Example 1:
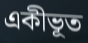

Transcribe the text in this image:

একীভূত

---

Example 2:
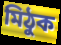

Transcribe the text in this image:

মিঠুক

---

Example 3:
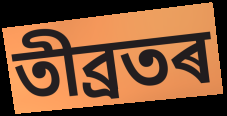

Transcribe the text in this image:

তীব্ৰতৰ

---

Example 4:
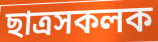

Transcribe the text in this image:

ছাত্ৰসকলক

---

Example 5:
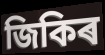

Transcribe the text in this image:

জিকিৰ